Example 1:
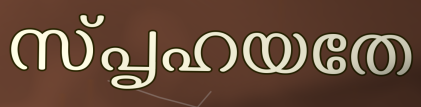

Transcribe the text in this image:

സ്പൃഹയതേ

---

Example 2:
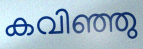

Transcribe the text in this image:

കവിഞ്ഞു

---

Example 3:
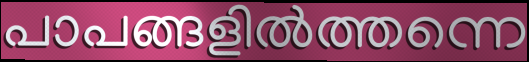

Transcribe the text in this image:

പാപങ്ങളിൽത്തന്നെ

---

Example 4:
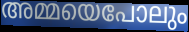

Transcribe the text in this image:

അമ്മയെപോലും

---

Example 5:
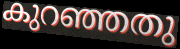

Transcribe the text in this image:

കുറഞ്ഞതു